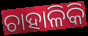
ଚାହାଳିକି